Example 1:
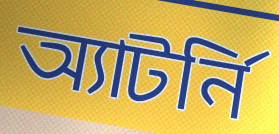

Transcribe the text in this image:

অ্যাটর্নি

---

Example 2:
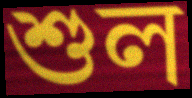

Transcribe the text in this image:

শুল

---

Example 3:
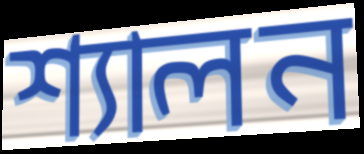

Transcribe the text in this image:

শ্যালন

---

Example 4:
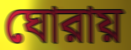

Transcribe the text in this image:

ঘোরায়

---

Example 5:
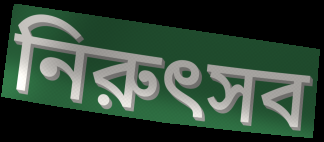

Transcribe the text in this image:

নিরুৎসব